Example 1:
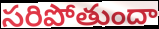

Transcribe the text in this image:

సరిపోతుందా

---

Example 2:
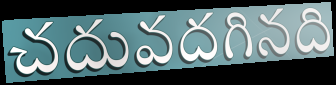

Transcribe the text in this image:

చదువదగినది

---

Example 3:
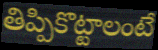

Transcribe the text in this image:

తిప్పికొట్టాలంటే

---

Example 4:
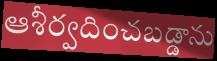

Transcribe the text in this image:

ఆశీర్వదించబడ్డాను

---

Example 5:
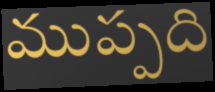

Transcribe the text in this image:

ముప్పది